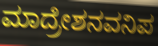
ಮಾದ್ರೇಶನವನಿಪ